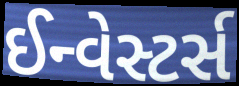
ઈન્વેસ્ટર્સ